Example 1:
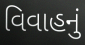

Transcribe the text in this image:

વિવાહનું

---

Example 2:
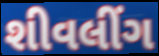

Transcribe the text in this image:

શીવલીંગ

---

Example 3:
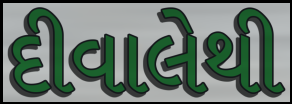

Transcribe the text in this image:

દીવાલેથી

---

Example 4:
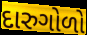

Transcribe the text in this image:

દારુગોળો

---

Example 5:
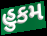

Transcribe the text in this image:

હુકમ